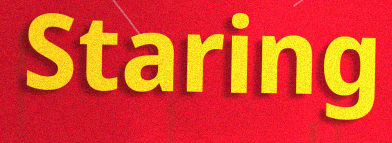
Staring